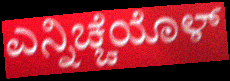
ಎನ್ನಿಚ್ಚೆಯೊಳ್